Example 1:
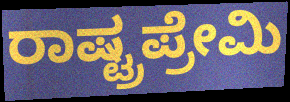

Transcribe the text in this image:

ರಾಷ್ಟ್ರಪ್ರೇಮಿ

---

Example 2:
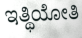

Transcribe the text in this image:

ಇತ್ಥಿಯೋತಿ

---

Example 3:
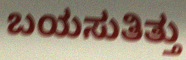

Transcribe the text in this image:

ಬಯಸುತಿತ್ತು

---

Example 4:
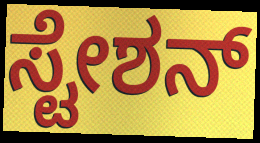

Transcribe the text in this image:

ಸ್ಟೇಶನ್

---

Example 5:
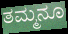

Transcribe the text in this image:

ತಮ್ಮನೂ